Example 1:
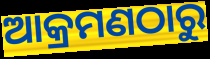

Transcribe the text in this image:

ଆକ୍ରମଣଠାରୁ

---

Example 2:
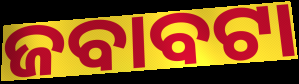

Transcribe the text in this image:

ଜବାବଟା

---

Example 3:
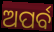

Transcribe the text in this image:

ଅପର୍ବ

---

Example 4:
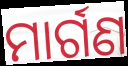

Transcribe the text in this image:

ମାର୍ଗଣ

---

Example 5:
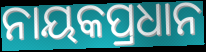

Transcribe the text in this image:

ନାୟକପ୍ରଧାନ